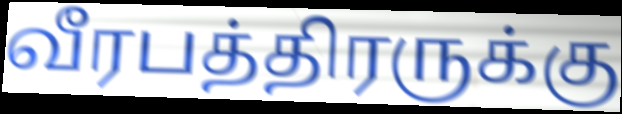
வீரபத்திரருக்கு